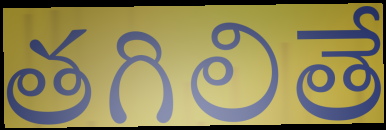
తగిలితే